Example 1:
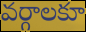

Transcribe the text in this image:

వర్గాలకూ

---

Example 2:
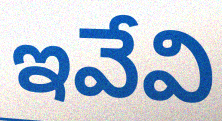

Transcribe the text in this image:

ఇవేవి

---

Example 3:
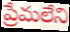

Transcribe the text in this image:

ప్రేమలేని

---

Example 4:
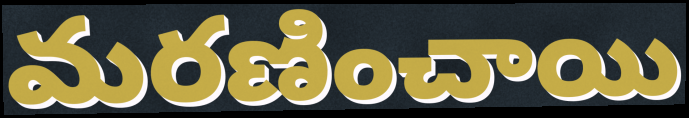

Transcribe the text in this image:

మరణించాయి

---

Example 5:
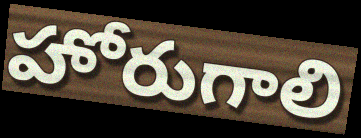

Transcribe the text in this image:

హోరుగాలి